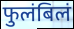
फुलंबिलं